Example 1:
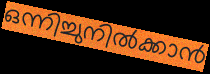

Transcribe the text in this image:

ഒന്നിച്ചുനിൽക്കാൻ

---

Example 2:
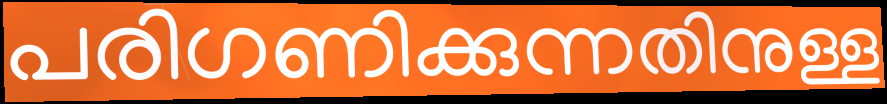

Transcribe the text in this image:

പരിഗണിക്കുന്നതിനുള്ള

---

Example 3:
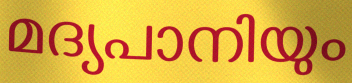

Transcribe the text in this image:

മദ്യപാനിയും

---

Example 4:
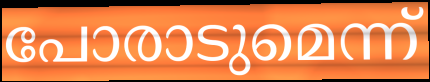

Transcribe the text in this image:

പോരാടുമെന്ന്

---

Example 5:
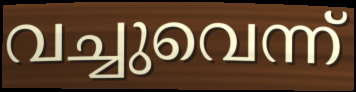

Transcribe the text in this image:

വച്ചുവെന്ന്